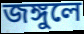
জঙ্গুলে